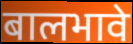
बालभावे